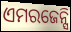
ଏମରଜେନ୍ସି